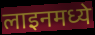
लाइनमध्ये